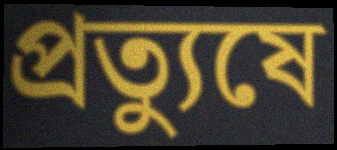
প্রত্যুষে